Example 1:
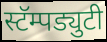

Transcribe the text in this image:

स्टॅम्पड्युटी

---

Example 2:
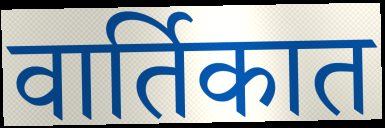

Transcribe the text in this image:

वार्तिकात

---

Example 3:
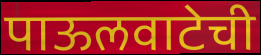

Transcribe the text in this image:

पाऊलवाटेची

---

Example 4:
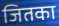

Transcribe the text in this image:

जितका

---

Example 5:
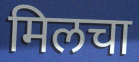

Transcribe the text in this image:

मिलचा